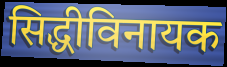
सिद्धीविनायक